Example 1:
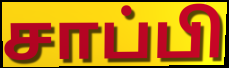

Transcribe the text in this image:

சாப்பி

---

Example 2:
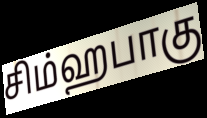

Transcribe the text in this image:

சிம்ஹபாகு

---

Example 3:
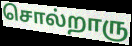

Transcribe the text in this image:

சொல்றாரு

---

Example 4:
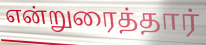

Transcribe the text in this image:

என்றுரைத்தார்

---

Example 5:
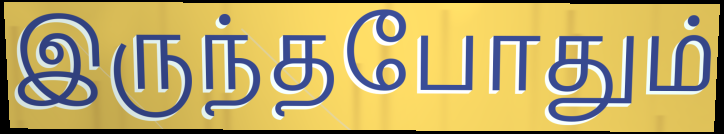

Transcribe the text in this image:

இருந்தபோதும்